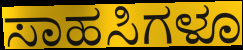
ಸಾಹಸಿಗಳೂ